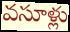
వసూళ్లు